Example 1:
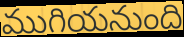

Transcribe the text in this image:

ముగియనుంది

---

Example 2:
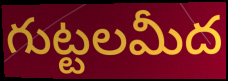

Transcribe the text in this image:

గుట్టలమీద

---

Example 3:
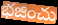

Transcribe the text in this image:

భజించు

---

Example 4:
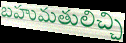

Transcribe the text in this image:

బహుమతులిచ్చి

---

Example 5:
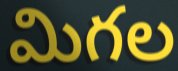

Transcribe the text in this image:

మిగల